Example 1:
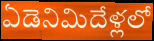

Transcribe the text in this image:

ఏడెనిమిదేళ్లలో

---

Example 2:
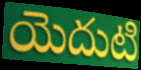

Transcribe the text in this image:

యెదుటి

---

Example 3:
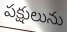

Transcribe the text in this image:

పక్షులును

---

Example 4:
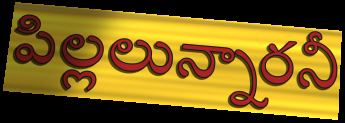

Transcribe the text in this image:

పిల్లలున్నారనీ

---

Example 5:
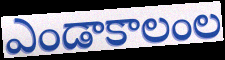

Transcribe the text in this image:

ఎండాకాలంల